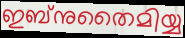
ഇബ്നുതൈമിയ്യ